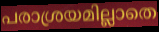
പരാശ്രയമില്ലാതെ